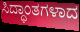
ಸಿದ್ಧಾಂತಗಳಾದ